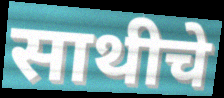
साथीचे